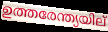
ഉത്തരേന്ത്യയില്